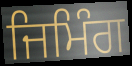
ਜਿਮਿੰਗ